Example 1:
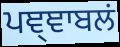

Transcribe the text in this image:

ਪਞ੍ਞਾਬਲਂ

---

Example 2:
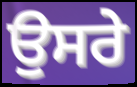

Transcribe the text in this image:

ਉਸਰੇ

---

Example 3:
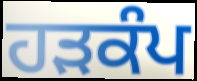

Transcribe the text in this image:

ਹਡ਼ਕੰਪ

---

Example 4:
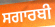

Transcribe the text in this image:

ਸਗਾਰਬੀ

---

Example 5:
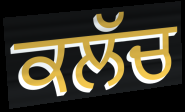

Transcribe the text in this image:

ਕਲੱਚ